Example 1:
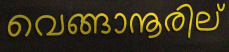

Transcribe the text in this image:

വെങ്ങാനൂരില്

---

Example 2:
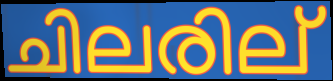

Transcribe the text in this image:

ചിലരില്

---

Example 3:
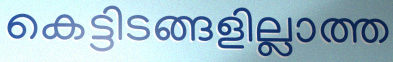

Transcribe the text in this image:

കെട്ടിടങ്ങളില്ലാത്ത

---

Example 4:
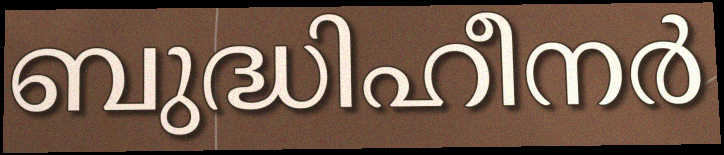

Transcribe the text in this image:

ബുദ്ധിഹീനർ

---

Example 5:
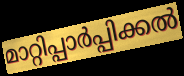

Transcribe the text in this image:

മാറ്റിപ്പാർപ്പിക്കൽ